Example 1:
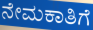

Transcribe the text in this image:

ನೇಮಕಾತಿಗೆ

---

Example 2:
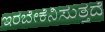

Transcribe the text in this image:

ಇರಬೇಕೆನಿಸುತ್ತದೆ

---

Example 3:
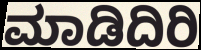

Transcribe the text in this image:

ಮಾಡಿದಿರಿ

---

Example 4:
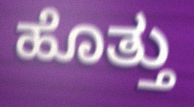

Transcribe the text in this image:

ಹೊತ್ತು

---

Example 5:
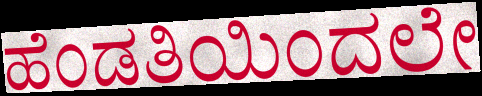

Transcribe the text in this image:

ಹೆಂಡತಿಯಿಂದಲೇ